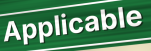
Applicable